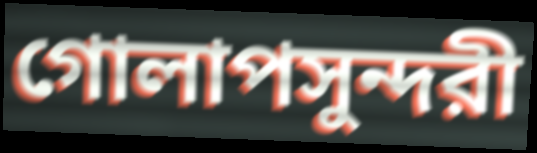
গোলাপসুন্দরী